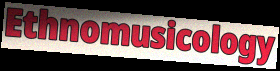
Ethnomusicology